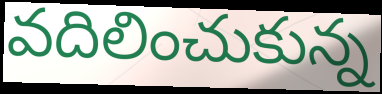
వదిలించుకున్న